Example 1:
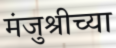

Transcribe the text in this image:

मंजुश्रीच्या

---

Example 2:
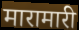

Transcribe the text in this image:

मारामारी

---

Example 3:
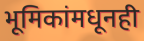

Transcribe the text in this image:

भूमिकांमधूनही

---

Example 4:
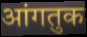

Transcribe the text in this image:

आंगतुक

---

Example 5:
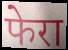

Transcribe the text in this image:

फेरा